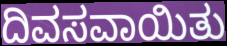
ದಿವಸವಾಯಿತು